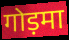
गोड़मा